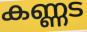
കണ്ണട